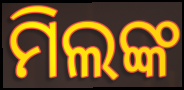
ମିଲଙ୍କ